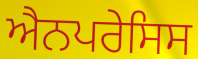
ਐਨਪਰੇਸਿਸ